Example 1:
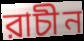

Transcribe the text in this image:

রাচীন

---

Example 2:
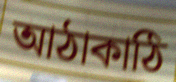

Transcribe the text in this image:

আঠাকাঠি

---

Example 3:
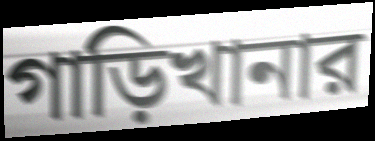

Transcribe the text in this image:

গাড়িখানার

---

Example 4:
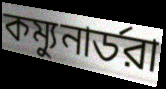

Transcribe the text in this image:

কম্যুনার্ডরা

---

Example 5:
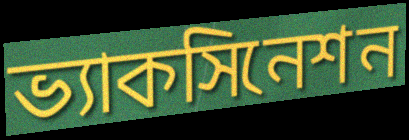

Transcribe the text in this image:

ভ্যাকসিনেশন